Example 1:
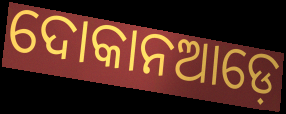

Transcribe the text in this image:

ଦୋକାନଆଡ଼େ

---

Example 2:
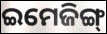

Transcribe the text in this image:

ଇମେଜିଙ୍ଗ୍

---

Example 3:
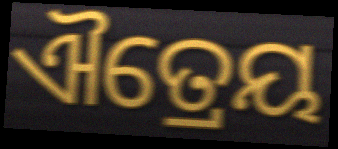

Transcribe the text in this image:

ଐତ୍ରେୟ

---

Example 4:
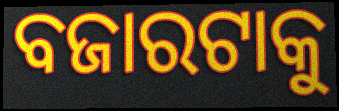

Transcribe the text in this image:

ବଜାରଟାକୁ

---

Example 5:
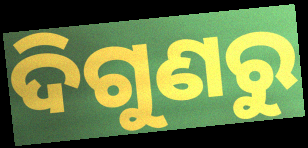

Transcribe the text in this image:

ଦିଗୁଣରୁ